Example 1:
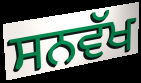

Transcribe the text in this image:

ਸਨਵੱਖ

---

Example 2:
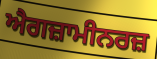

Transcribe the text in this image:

ਐਗਜ਼ਾਮੀਨਰਜ਼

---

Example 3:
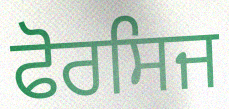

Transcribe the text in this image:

ਫੋਰਸਿਜ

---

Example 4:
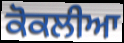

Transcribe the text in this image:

ਕੋਕਲੀਆ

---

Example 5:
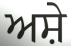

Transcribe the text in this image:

ਅਸ਼ੇ